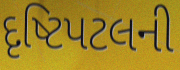
દૃષ્ટિપટલની